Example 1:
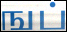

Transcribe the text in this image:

ஙப்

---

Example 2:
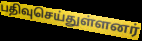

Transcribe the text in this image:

பதிவுசெய்துள்ளனர்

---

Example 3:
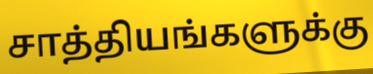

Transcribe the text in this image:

சாத்தியங்களுக்கு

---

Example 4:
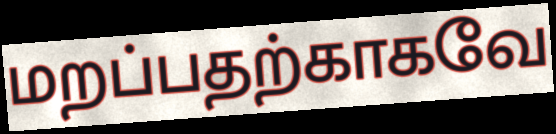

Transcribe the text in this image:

மறப்பதற்காகவே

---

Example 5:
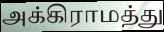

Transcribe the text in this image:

அக்கிராமத்து